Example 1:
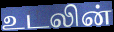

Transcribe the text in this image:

உடலின்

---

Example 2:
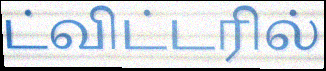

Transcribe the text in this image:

ட்விட்டரில்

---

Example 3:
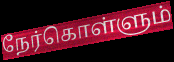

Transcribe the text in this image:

நேர்கொள்ளும்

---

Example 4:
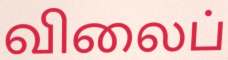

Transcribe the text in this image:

விலைப்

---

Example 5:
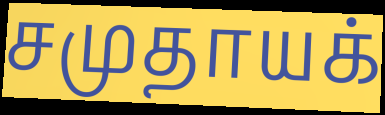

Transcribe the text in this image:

சமுதாயக்